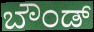
ಬೌಂಡ್